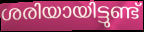
ശരിയായിട്ടുണ്ട്